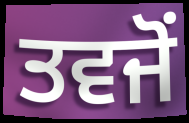
ਤਵਜੋਂ